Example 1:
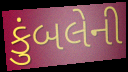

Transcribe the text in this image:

કુંબલેની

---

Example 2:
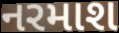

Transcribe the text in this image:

નરમાશ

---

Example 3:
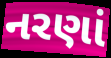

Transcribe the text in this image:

નરણાં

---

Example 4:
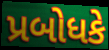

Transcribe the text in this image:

પ્રબોધકે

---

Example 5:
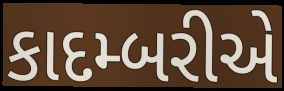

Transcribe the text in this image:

કાદમ્બરીએ